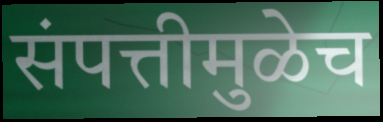
संपत्तीमुळेच